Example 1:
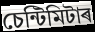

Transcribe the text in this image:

চেন্টিমিটাৰ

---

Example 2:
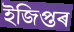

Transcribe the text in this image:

ইজিপ্তৰ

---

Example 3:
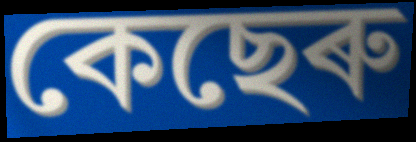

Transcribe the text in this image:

কেছেৰু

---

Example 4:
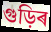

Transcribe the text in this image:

গুড়িৰ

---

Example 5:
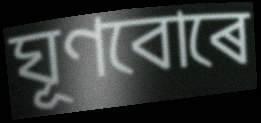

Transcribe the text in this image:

ঘূণবোৰে